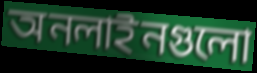
অনলাইনগুলো